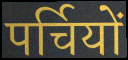
पर्चियों